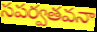
సపర్వతవనా